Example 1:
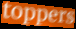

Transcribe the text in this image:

toppers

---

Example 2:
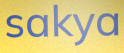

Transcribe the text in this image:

sakya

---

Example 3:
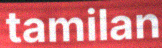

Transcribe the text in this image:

tamilan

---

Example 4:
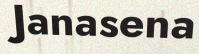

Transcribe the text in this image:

Janasena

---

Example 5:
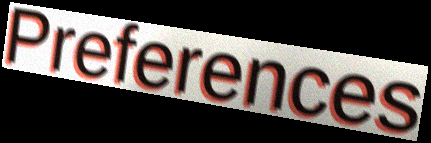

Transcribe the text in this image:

Preferences